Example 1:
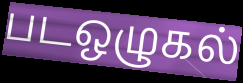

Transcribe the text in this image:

படஒழுகல்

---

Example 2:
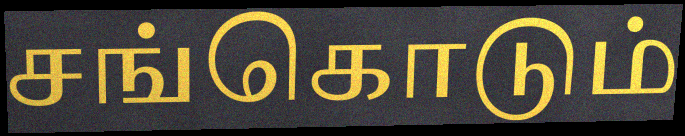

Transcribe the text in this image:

சங்கொடும்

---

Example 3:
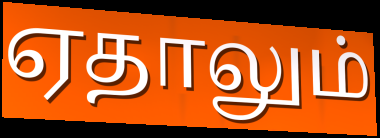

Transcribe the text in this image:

ஏதாலும்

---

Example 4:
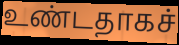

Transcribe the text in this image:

உண்டதாகச்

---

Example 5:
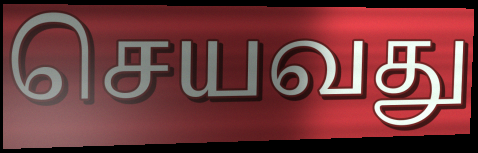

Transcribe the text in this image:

செயவது